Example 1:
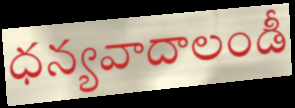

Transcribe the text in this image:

ధన్యవాదాలండీ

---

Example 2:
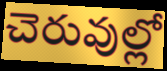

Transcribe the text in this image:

చెరువుల్లో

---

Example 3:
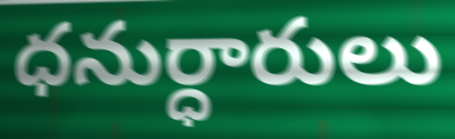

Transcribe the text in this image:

ధనుర్ధారులు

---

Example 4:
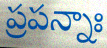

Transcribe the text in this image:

ప్రపన్నాః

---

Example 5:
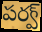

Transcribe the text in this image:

పర్వ్